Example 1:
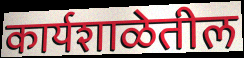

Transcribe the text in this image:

कार्यशाळेतील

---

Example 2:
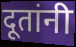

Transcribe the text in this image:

दूतांनी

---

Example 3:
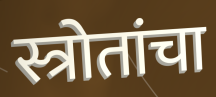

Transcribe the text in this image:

स्त्रोतांचा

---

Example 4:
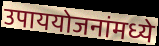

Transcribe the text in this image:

उपाययोजनांमध्ये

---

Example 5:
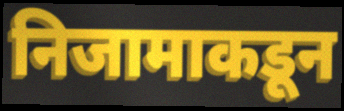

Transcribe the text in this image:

निजामाकडून